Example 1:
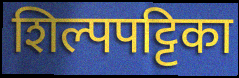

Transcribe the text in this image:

शिल्पपट्टिका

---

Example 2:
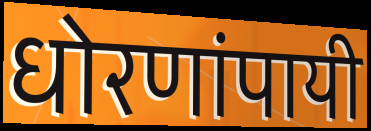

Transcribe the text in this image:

धोरणांपायी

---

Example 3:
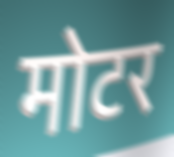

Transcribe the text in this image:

मोटर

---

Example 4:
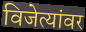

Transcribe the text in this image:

विजेत्यांवर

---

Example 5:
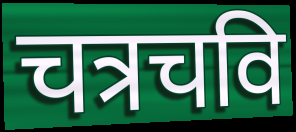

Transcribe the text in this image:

चत्रचवि